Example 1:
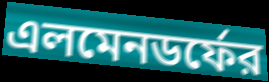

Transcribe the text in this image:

এলমেনডর্ফের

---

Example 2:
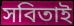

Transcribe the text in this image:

সবিতাই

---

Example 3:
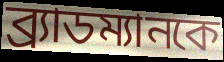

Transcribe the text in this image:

ব্র্যাডম্যানকে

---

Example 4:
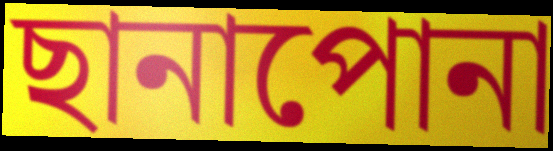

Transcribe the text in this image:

ছানাপোনা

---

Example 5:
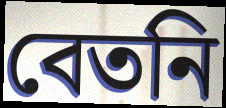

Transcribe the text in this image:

বেতনি